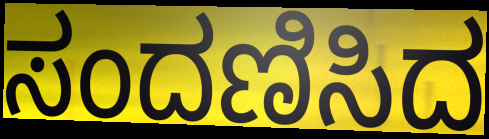
ಸಂದಣಿಸಿದ